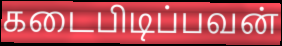
கடைபிடிப்பவன்